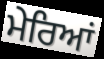
ਮੇਰਿਆਂ